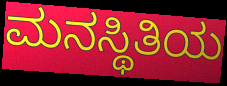
ಮನಸ್ಥಿತಿಯ